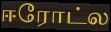
ஈரோட்ல